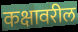
कक्षावरील